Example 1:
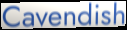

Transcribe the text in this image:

Cavendish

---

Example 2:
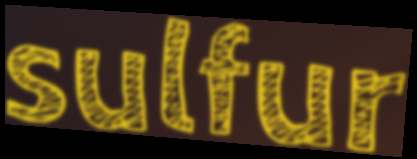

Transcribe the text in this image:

sulfur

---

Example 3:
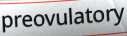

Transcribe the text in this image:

preovulatory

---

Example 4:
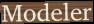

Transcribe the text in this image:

Modeler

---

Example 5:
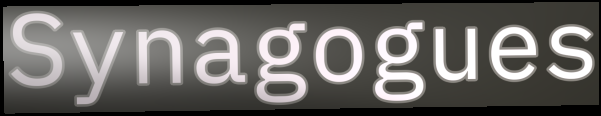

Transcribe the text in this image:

Synagogues